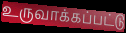
உருவாக்கப்பட்டு